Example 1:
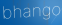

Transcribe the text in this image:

bhango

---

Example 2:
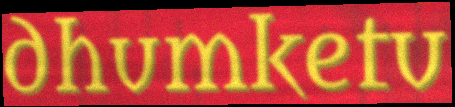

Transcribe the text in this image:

dhumketu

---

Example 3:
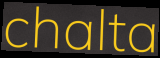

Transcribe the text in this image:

chalta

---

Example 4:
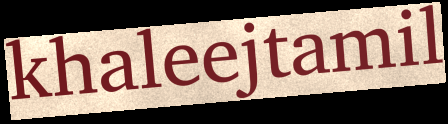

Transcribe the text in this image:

khaleejtamil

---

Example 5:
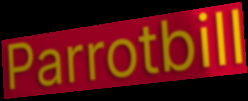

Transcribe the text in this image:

Parrotbill